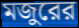
মজুরের